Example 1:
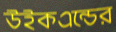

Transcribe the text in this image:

উইকএন্ডের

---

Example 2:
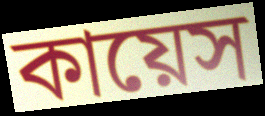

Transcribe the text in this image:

কায়েস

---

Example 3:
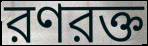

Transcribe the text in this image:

রণরক্ত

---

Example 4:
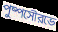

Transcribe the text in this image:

পুষ্পসৌরভে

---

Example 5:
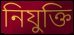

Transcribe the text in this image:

নিযুক্তি